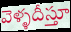
వెళ్ళదీస్తూ